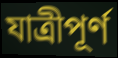
যাত্রীপূর্ণ